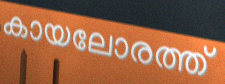
കായലോരത്ത്